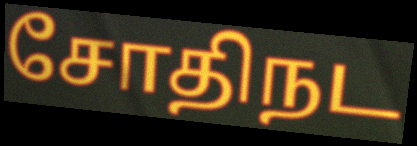
சோதிநட